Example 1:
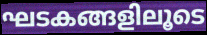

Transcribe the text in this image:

ഘടകങ്ങളിലൂടെ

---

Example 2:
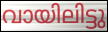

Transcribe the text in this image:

വായിലിട്ടു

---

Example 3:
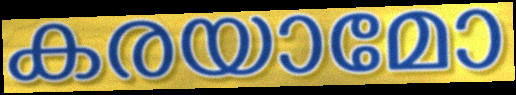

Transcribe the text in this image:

കരയാമോ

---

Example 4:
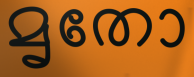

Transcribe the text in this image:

മൃതോ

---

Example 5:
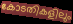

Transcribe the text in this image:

കോടതികളിലും